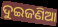
ଦୁଇଜଣିଆ